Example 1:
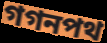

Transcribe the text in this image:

গগনপথ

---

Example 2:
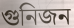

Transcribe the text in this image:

গুনিজন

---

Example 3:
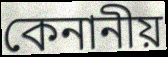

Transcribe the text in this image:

কেনানীয়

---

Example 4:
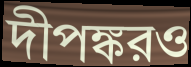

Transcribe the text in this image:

দীপঙ্করও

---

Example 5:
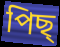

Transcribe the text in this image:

পিছ্